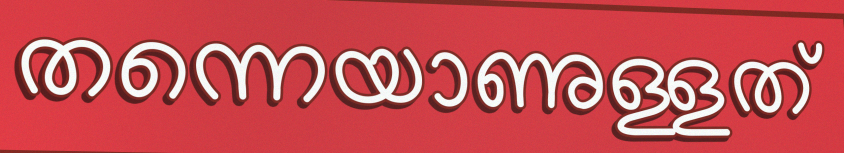
തന്നെയാണുള്ളത്